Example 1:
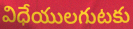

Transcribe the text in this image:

విధేయులగుటకు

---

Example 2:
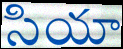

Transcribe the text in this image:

సియా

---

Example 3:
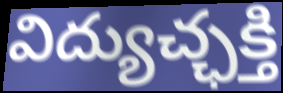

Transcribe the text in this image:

విద్యుచ్ఛక్తి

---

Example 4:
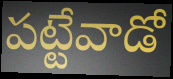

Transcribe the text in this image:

పట్టేవాడో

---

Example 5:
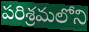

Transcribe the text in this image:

పరిశ్రమలోని